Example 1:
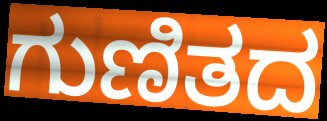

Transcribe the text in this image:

ಗುಣಿತದ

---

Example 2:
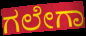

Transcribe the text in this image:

ಗಲೇಗಾ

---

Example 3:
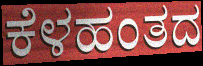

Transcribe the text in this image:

ಕೆಳಹಂತದ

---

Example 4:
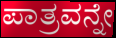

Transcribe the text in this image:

ಪಾತ್ರವನ್ನೇ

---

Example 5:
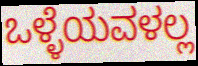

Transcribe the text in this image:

ಒಳ್ಳೆಯವಳಲ್ಲ